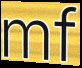
mf